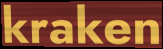
kraken